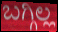
ಬಗ್ಗಿಲ್ಲ